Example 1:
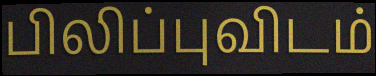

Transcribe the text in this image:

பிலிப்புவிடம்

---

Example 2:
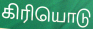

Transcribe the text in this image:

கிரியொடு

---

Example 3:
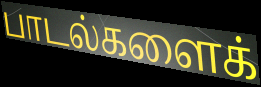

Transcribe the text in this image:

பாடல்களைக்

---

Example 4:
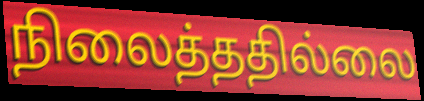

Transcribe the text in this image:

நிலைத்ததில்லை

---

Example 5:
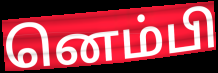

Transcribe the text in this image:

னெம்பி